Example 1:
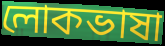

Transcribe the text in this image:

লোকভাষা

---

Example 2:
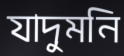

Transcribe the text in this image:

যাদুমনি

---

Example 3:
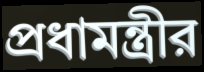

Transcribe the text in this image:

প্রধামন্ত্রীর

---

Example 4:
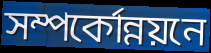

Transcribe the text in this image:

সম্পর্কোন্নয়নে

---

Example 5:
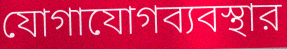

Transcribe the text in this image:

যোগাযোগব্যবস্থার